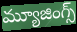
మ్యూజింగ్స్